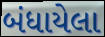
બંધાયેલા